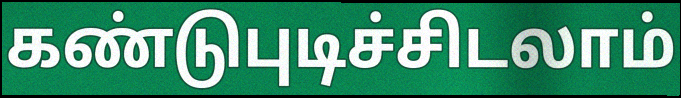
கண்டுபுடிச்சிடலாம்